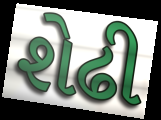
શેઢી